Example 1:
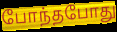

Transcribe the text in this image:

போந்தபோது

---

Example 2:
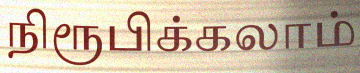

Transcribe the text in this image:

நிரூபிக்கலாம்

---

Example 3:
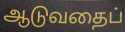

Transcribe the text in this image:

ஆடுவதைப்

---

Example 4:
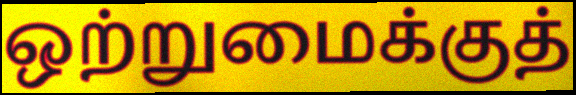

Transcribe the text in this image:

ஒற்றுமைக்குத்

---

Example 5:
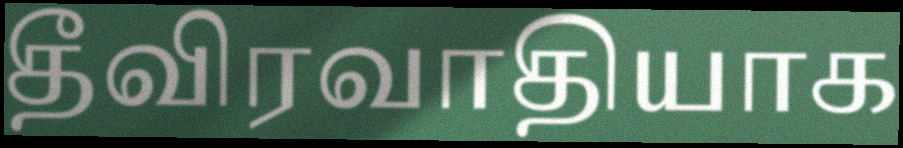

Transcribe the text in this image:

தீவிரவாதியாக